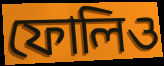
ফোলিও